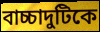
বাচ্চাদুটিকে